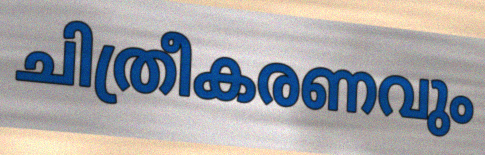
ചിത്രീകരണവും